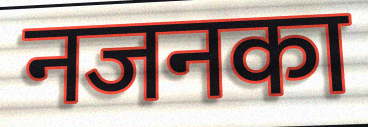
नजनका